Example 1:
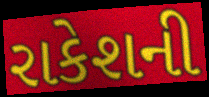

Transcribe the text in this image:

રાકેશની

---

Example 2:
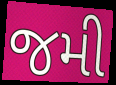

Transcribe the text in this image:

જમી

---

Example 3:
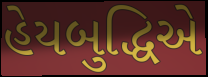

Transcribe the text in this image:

હેયબુદ્ધિએ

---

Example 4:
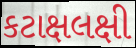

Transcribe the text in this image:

કટાક્ષલક્ષી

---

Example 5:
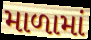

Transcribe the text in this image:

માળામાં